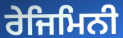
ਰੇਜਿਮਿਨੀ